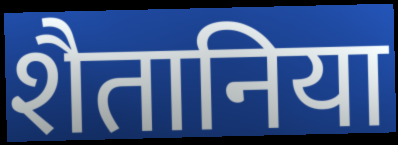
शैतानिया